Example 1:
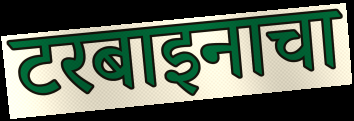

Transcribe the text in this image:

टरबाइनाचा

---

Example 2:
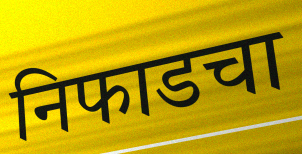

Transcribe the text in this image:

निफाडचा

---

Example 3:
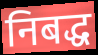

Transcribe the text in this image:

निबद्ध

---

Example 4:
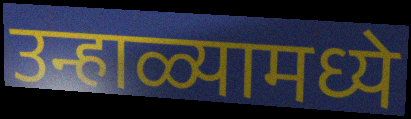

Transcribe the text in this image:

उन्हाळ्यामध्ये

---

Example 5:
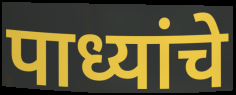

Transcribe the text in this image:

पाध्यांचे